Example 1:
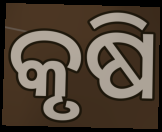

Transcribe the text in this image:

କୃଷି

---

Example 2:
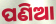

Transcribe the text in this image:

ପଣିଆ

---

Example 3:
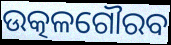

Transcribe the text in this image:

ଉତ୍କଳଗୌରବ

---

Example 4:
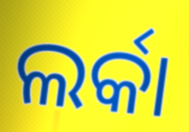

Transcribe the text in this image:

ଲର୍କା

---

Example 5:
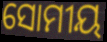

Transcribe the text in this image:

ସୋମୀୟ